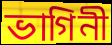
ভাগিনী